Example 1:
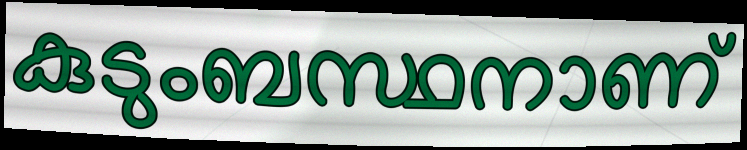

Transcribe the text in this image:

കുടുംബസ്ഥനാണ്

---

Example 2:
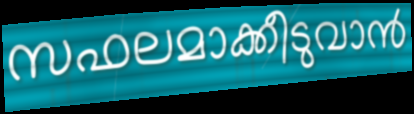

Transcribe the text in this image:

സഫലമാക്കീടുവാൻ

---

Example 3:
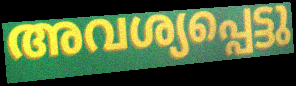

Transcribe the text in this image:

അവശ്യപ്പെട്ടു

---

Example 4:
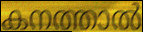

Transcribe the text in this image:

കനത്താൽ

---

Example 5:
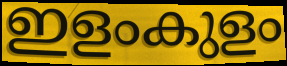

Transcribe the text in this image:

ഇളംകുളം